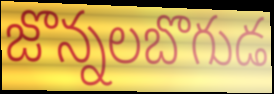
జొన్నలబొగుడ